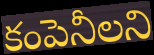
కంపెనీలని